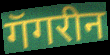
गॅगरीन